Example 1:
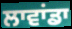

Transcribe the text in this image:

ਲਾਵਾਂਡਾ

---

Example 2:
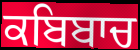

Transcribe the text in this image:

ਕਬਿਬਾਚ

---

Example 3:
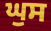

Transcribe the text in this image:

ਘੁਸ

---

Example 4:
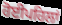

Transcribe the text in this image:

ਹੋਈਪਹਿਲਾਂ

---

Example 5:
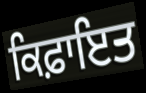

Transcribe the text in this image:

ਕਿਫ਼ਾਇਤ